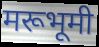
मरूभूमी